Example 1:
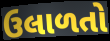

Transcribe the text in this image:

ઉલાળતો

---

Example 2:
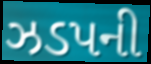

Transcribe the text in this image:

ઝડપની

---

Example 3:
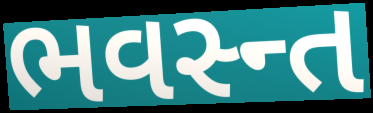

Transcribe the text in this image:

ભવસ્ન્ત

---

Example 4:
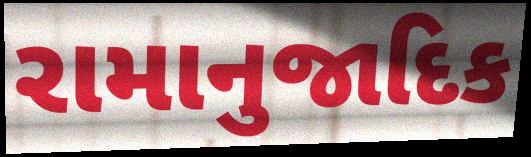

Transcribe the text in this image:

રામાનુજાદિક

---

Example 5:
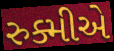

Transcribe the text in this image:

રુક્મીએ